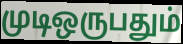
முடிஒருபதும்